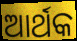
ଆର୍ଥକ